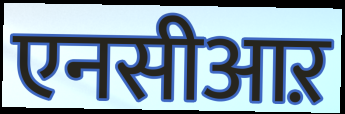
एनसीआऱ